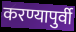
करण्यापुर्वी